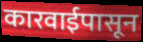
कारवाईपासून